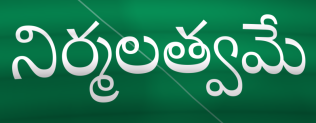
నిర్మలత్వమే